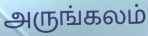
அருங்கலம்